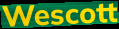
Wescott